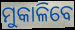
ମୁକାଳିବେ